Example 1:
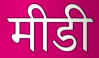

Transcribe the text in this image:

मीडी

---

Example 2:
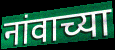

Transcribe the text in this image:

नांवाच्या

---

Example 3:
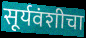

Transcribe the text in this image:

सूर्यवंशीचा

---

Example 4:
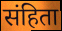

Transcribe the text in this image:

संहिता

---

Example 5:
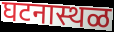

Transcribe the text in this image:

घटनास्थळ